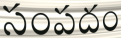
సంపదం